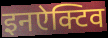
इनऐक्टिव